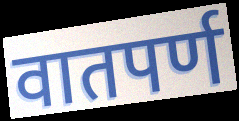
वातपर्ण